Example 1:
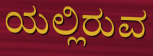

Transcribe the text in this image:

ಯಲ್ಲಿರುವ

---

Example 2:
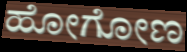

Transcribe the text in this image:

ಹೋಗೋಣ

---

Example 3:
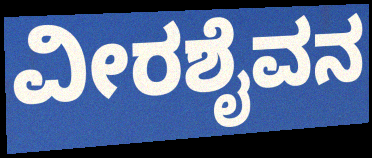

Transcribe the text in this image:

ವೀರಶೈವನ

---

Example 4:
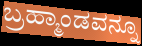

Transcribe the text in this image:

ಬ್ರಹ್ಮಾಂಡವನ್ನೂ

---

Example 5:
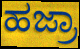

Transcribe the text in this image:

ಹಜ್ರಾ